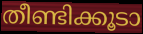
തീണ്ടിക്കൂടാ